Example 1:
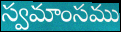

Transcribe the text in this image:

స్వమాంసము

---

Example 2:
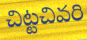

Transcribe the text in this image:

చిట్టచివరి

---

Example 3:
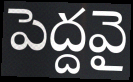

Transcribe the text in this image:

పెద్దవై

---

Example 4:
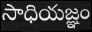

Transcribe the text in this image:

సాధియజ్ఞం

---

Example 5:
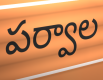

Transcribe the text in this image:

పర్వాల